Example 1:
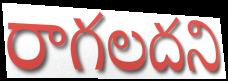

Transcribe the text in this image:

రాగలదని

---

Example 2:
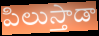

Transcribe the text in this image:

పిలుస్తాడా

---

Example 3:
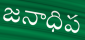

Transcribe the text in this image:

జనాధిప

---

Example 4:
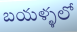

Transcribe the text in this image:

బయళ్ళలో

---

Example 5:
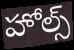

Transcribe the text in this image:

హోల్స్